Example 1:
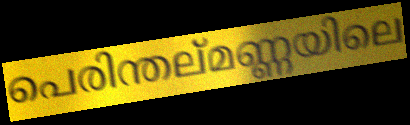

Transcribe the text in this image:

പെരിന്തല്മണ്ണയിലെ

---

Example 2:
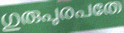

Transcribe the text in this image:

ഗുരുപുരപതേ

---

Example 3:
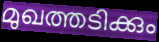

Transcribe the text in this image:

മുഖത്തടിക്കും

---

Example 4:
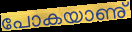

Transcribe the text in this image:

പോകയാണു്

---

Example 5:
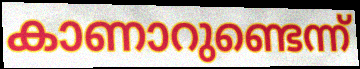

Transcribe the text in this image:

കാണാറുണ്ടെന്ന്